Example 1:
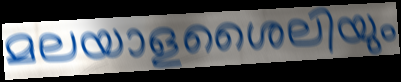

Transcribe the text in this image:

മലയാളശൈലിയും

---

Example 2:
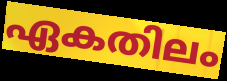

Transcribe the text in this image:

ഏകതിലം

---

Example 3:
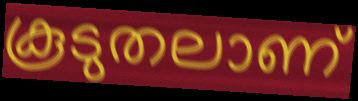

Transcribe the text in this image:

കൂടുതലാണ്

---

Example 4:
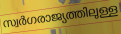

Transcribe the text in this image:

സ്വർഗരാജ്യത്തിലുള്ള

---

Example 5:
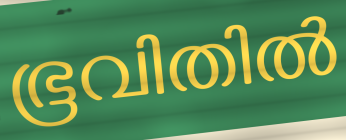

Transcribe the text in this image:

ഭൂവിതിൽ